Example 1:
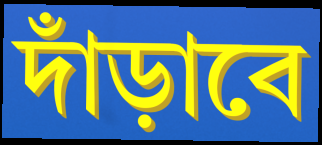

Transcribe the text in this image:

দাঁড়াবে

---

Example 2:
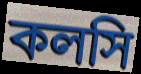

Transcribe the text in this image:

কলসি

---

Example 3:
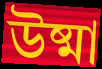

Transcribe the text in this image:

উষ্মা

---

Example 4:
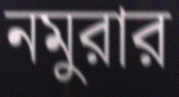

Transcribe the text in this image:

নমুরার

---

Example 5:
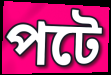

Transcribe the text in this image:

পটে